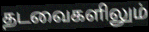
தடவைகளிலும்